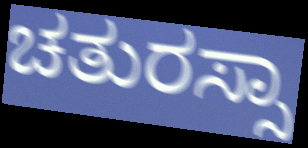
ಚತುರಸ್ಸಾ